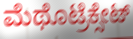
ಮೆಥೊಟ್ರೆಕ್ಸೇಟ್